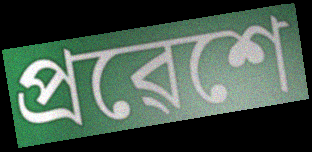
প্ৰৱেশে